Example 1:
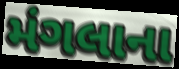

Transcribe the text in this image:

મંગલાના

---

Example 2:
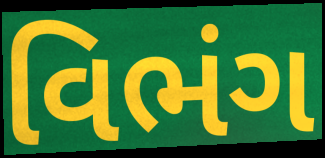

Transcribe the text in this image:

વિભંગ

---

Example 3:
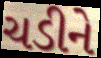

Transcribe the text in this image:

ચડીને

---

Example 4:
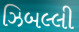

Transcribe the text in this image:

ઝિબલ્લી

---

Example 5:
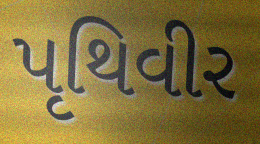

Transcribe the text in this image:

પૃથિવીર